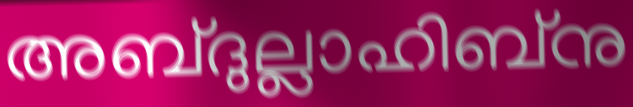
അബ്ദുല്ലാഹിബ്നു